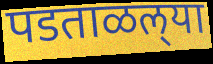
पडताळल्या